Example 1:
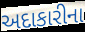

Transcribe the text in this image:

અદાકારીના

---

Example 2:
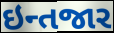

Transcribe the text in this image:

ઇન્તજાર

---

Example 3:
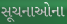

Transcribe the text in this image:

સૂચનાઓના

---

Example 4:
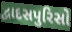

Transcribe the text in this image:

દ્વાદસપુરિસો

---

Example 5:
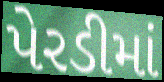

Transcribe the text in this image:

પેરડીમાં